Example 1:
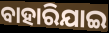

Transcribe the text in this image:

ବାହାରିଯାଇ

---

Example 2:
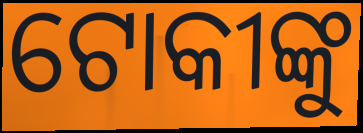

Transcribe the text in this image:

ଟୋକୀଙ୍କୁ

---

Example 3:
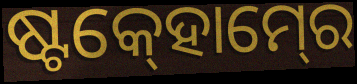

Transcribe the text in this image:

ଷ୍ଟକ୍‍ହୋମ୍‍ରେ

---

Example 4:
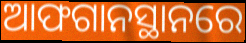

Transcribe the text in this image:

ଆଫଗାନସ୍ଥାନରେ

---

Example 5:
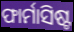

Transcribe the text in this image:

ଫାର୍ମାସିଷ୍ଟ